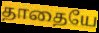
தாதையே